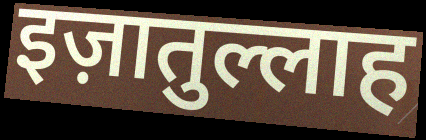
इज़ातुल्लाह